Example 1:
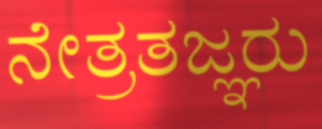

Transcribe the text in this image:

ನೇತ್ರತಜ್ಞರು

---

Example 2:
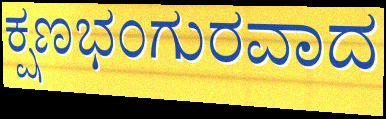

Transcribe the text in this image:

ಕ್ಷಣಭಂಗುರವಾದ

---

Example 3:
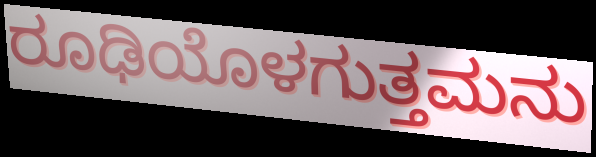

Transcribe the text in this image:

ರೂಢಿಯೊಳಗುತ್ತಮನು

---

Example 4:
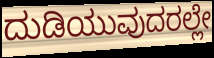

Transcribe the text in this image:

ದುಡಿಯುವುದರಲ್ಲೇ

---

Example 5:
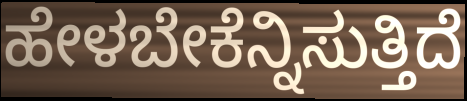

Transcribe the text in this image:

ಹೇಳಬೇಕೆನ್ನಿಸುತ್ತಿದೆ